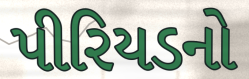
પીરિયડનો